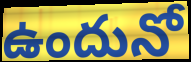
ఉందునో